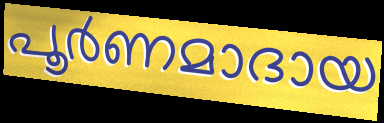
പൂർണമാദായ